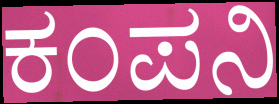
ಕಂಪನಿ